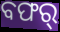
ବଫର୍